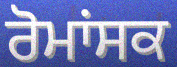
ਰੋਮਾਂਸਕ